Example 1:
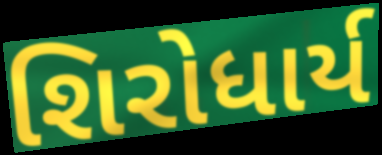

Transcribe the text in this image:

શિરોધાર્ય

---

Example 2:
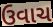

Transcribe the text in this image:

ઉવાચ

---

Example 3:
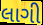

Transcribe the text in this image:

લાગી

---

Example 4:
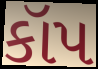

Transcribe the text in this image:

કૉપ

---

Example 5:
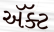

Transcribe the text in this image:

ઍૅક્ટ